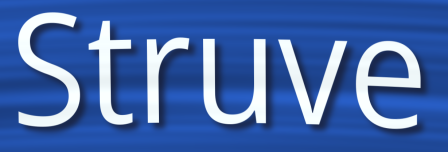
Struve